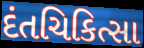
દંતચિકિત્સા